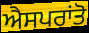
ਐਸਪਰਾਂਤੋ